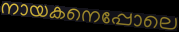
നായകനെപ്പോലെ